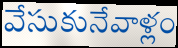
వేసుకునేవాళ్లం